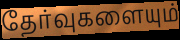
தேர்வுகளையும்